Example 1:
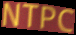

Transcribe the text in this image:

NTPC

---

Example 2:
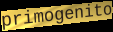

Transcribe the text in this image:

primogenito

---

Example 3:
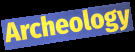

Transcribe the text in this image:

Archeology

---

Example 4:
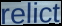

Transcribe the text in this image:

relict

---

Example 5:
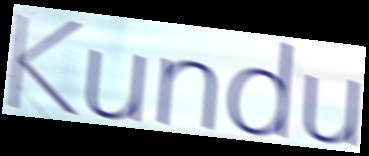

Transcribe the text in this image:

Kundu